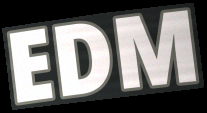
EDM